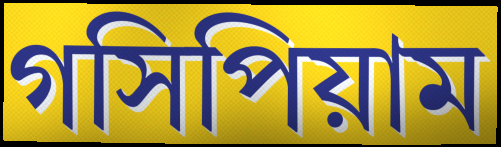
গসিপিয়াম